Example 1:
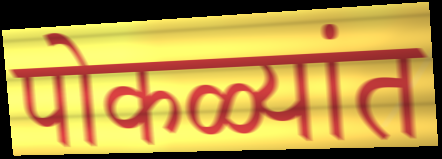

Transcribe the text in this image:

पोकळ्यांत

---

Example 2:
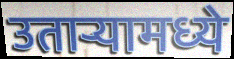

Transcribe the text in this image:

उताऱ्यामध्ये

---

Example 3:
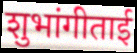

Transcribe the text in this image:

शुभांगीताई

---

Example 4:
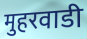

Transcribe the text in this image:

मुहरवाडी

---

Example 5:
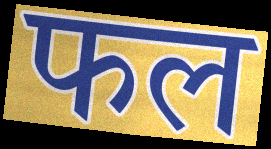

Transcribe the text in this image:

फल